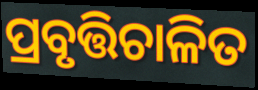
ପ୍ରବୃତ୍ତିଚାଳିତ